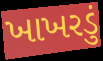
ખાખરડું